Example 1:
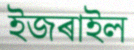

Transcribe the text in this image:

ইজৰাইল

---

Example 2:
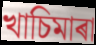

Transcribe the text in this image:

খাচিমাৰা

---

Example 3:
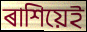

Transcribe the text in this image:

ৰাশিয়েই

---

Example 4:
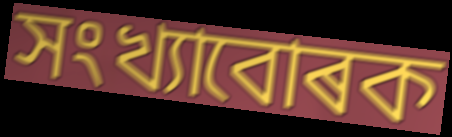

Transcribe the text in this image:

সংখ্যাবোৰক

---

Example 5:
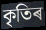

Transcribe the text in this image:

কৃতিৰ